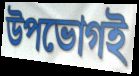
উপভোগই